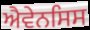
ਐਵੇਨਸਿਸ